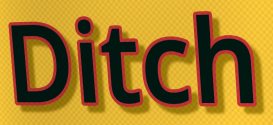
Ditch